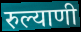
रुल्याणी